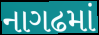
નાગઢમાં